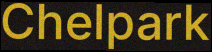
Chelpark